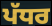
ਪੱਧਰ